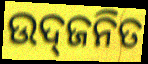
ଉଦ୍‌ଜନିତ